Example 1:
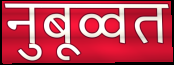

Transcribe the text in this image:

नुबूव्वत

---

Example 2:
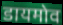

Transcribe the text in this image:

डायमोव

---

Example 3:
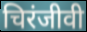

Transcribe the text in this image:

चिरंजीवी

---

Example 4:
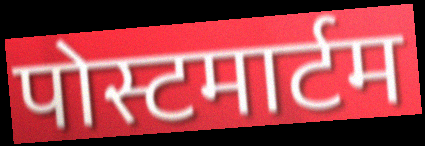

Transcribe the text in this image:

पोस्टमार्टम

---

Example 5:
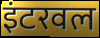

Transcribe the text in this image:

इंटरवल